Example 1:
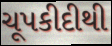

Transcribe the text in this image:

ચૂપકીદીથી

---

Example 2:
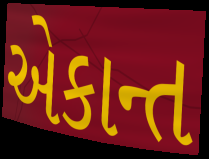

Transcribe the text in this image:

એકાન્ત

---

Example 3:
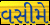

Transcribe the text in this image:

વસીમે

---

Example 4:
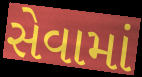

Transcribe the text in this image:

સેવામાં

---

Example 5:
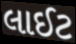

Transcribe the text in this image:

લાઈટ